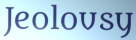
Jeolousy